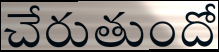
చేరుతుందో